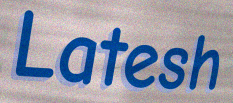
Latesh